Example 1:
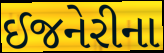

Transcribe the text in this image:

ઈજનેરીના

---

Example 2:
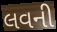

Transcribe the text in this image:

લવની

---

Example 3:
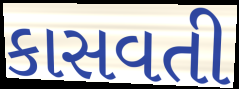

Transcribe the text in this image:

કાસવતી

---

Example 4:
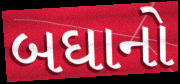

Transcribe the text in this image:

બઘાનો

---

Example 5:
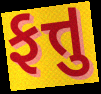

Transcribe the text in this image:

ફત્તુ